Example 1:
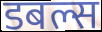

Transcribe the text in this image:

डबल्स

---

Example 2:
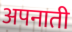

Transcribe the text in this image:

अपनाती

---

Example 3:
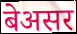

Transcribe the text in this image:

बेअसर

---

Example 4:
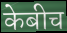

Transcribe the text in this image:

केबीच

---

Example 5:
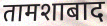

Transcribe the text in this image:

तामशाबाद